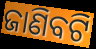
ଜାଣିବଟି